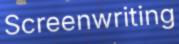
Screenwriting